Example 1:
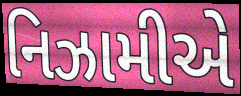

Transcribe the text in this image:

નિઝામીએ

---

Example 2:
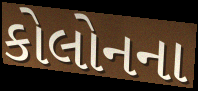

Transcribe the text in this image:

કોલોનના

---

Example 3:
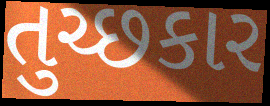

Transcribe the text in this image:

તુચ્છકાર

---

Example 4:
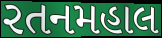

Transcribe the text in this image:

રતનમહાલ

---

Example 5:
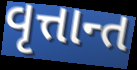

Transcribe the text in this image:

વૃત્તાન્ત